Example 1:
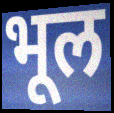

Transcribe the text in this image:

भूल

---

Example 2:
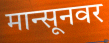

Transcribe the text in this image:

मान्सूनवर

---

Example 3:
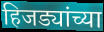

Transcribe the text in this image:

हिजड्यांच्या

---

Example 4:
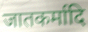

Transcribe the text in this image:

जातकर्मादि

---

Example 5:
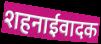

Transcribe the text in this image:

शहनाईवादक